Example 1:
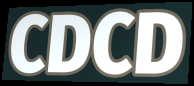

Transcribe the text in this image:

CDCD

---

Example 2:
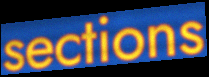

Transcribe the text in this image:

sections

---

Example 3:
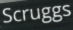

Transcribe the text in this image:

Scruggs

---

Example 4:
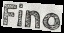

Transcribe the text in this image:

Fino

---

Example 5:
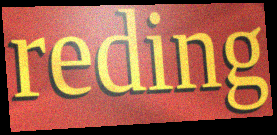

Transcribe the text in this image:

reding